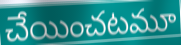
చేయించటమూ